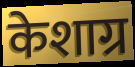
केशाग्र